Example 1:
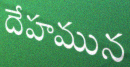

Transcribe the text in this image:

దేహమున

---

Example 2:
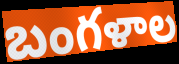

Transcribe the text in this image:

బంగళాల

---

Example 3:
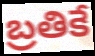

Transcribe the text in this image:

బ్రతికే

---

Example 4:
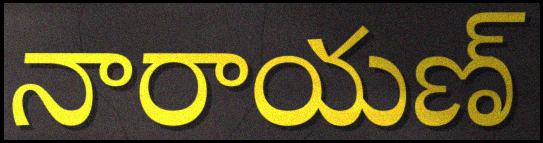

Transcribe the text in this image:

నారాయణ్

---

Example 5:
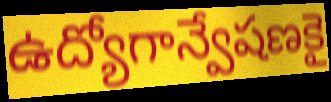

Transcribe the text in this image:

ఉద్యోగాన్వేషణకై